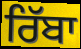
ਰਿੱਬਾ